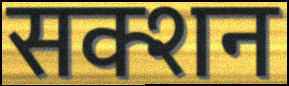
सक्शन